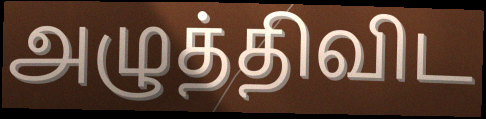
அழுத்திவிட